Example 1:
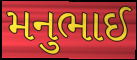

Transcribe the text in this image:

મનુભાઈ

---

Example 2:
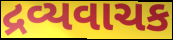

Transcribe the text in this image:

દ્રવ્યવાચક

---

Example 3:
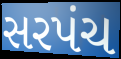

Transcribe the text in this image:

સરપંચ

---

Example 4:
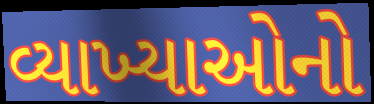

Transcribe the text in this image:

વ્યાખ્યાઓનો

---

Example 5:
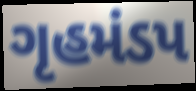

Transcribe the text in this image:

ગૃહમંડપ